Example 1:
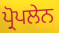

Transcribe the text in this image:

ਪ੍ਰੋਪਲੇਨ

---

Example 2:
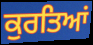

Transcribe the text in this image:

ਕੁਰਤਿਆਂ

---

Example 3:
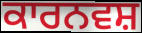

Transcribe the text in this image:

ਕਾਰਨਵਸ਼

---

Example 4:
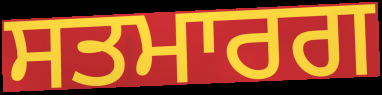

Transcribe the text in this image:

ਸਤਮਾਰਗ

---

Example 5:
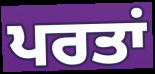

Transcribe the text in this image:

ਪਰਤਾਂ